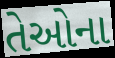
તેઓના